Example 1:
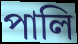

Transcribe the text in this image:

পালি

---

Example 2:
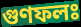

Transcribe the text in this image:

গুণফলঃ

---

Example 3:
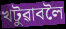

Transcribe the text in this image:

খটুৱাবলৈ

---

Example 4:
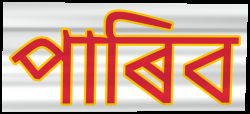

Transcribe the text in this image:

পাৰিব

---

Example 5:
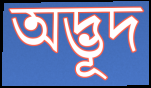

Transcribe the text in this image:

অদ্ভূদ